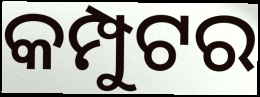
କମ୍ପୁଟର